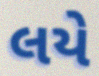
લયે